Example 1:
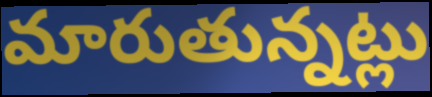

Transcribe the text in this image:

మారుతున్నట్లు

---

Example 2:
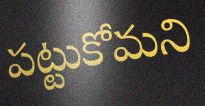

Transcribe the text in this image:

పట్టుకోమని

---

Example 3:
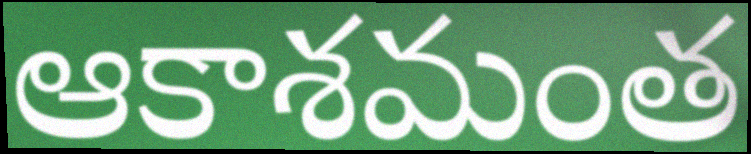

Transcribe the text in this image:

ఆకాశమంత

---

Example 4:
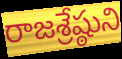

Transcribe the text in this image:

రాజశ్రేష్ఠుని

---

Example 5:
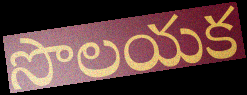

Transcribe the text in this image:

సొలయక